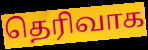
தெரிவாக